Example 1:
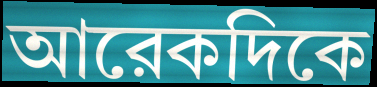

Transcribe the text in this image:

আরেকদিকে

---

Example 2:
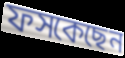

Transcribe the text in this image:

ফসকেছেন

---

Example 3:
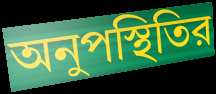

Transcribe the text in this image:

অনুপস্থিতির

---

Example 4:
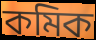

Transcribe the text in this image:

কমিক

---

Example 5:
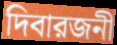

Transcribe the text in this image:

দিবারজনী